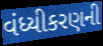
વંધ્યીકરણની